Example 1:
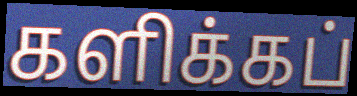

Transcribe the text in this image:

களிக்கப்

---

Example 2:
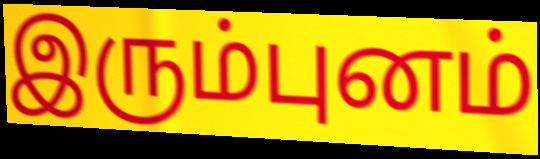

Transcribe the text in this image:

இரும்புனம்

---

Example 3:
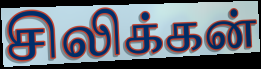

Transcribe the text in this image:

சிலிக்கன்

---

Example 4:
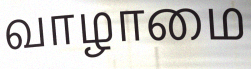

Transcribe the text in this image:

வாழாமை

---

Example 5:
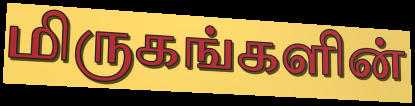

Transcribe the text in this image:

மிருகங்களின்